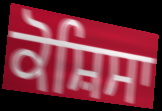
ਕੋਸ਼ਿਸਾ